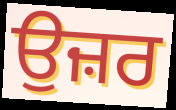
ਉਜ਼ਰ